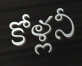
కోళ్లనీ